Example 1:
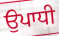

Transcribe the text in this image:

ਉਪਾਧੀ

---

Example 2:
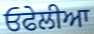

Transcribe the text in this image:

ਓਫੇਲੀਆ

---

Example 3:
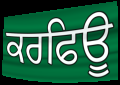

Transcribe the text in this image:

ਕਰਫਿਊ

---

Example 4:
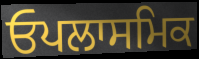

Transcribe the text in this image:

ਓਪਲਾਸਮਿਕ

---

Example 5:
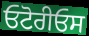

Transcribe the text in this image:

ਓਟੋਰੀਓਸ